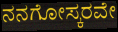
ನನಗೋಸ್ಕರವೇ